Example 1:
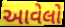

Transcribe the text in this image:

આવેલો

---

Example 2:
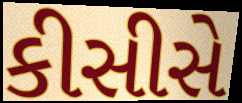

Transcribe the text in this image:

કીસીસે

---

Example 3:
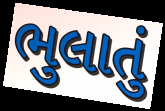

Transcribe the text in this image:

ભુલાતું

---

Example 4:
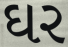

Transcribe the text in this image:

ઘર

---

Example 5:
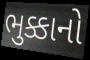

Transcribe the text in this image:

ભુક્કાનો